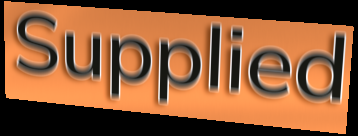
Supplied